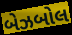
બેઝબોલ